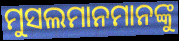
ମୁସଲମାନମାନଙ୍କୁ